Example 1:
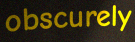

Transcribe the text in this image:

obscurely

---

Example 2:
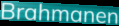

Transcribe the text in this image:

Brahmanen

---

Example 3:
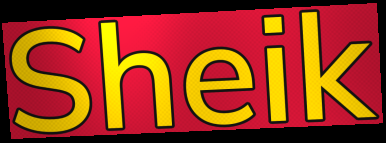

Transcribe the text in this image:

Sheik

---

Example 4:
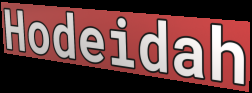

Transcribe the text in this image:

Hodeidah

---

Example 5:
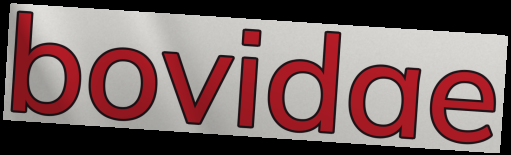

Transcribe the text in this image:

bovidae